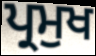
ਪ੍ਰਮੁਖ